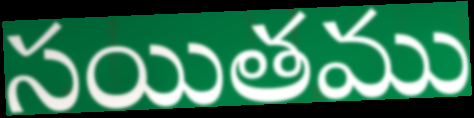
సయితము